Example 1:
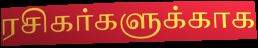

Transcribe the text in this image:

ரசிகர்களுக்காக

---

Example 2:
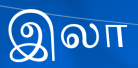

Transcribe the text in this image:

இலா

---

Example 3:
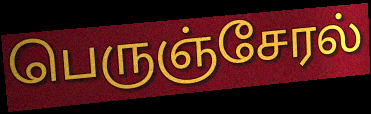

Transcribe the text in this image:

பெருஞ்சேரல்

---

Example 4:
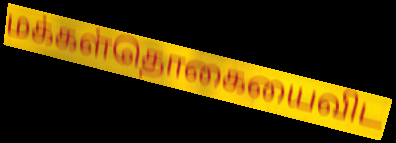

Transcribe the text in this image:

மக்கள்தொகையைவிட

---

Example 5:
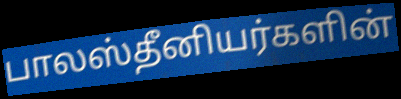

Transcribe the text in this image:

பாலஸ்தீனியர்களின்